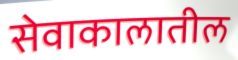
सेवाकालातील